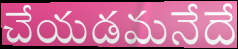
చేయడమనేదే